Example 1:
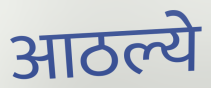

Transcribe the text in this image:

आठल्ये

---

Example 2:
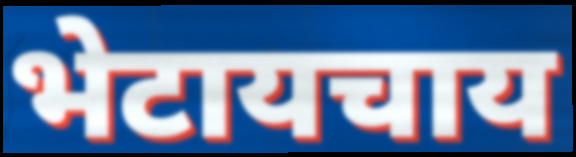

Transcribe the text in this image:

भेटायचाय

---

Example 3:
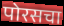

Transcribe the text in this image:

पोरसचा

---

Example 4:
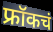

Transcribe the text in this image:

फ्रॉकचं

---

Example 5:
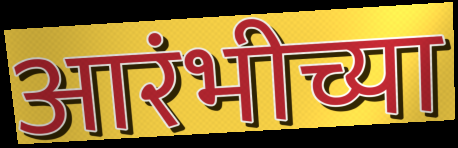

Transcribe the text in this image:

आरंभीच्या